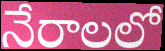
నేరాలలో